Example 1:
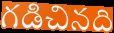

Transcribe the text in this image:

గడిచినది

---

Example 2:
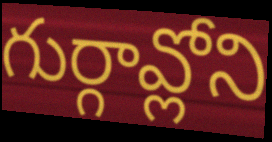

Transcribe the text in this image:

గుర్గావ్లోని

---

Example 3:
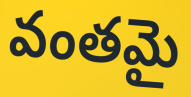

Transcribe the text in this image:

వంతమై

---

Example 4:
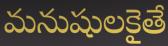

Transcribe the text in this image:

మనుషులకైతే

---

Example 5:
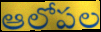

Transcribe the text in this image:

ఆలోపల